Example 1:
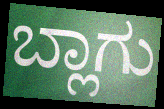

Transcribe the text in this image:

ಬ್ಲಾಗು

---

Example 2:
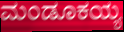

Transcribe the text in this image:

ಮಂಡೂಕಯ್ಯ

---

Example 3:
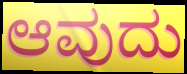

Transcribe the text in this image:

ಆವುದು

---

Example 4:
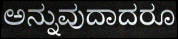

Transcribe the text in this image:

ಅನ್ನುವುದಾದರೂ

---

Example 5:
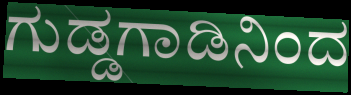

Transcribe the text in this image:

ಗುಡ್ಡಗಾಡಿನಿಂದ